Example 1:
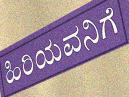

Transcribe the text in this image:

ಹಿರಿಯವನಿಗೆ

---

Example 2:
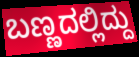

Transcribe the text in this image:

ಬಣ್ಣದಲ್ಲಿದ್ದು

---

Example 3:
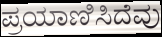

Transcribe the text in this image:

ಪ್ರಯಾಣಿಸಿದೆವು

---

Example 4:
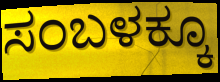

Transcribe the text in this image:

ಸಂಬಳಕ್ಕೂ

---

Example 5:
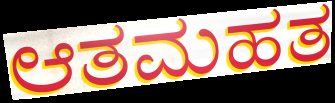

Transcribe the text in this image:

ಆತಮಹತ